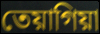
তেয়াগিয়া